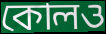
কোলও